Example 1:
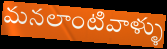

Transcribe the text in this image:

మనలాంటివాళ్ళు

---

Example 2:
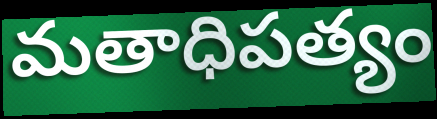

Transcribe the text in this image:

మతాధిపత్యం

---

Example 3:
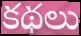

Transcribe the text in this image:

కథలు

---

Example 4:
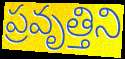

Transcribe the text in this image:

ప్రవృత్తిని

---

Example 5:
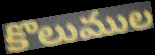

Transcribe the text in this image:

కొలుముల